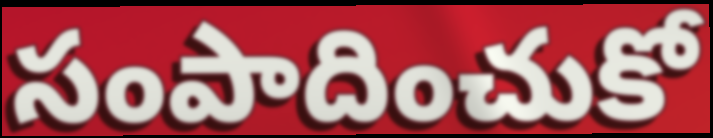
సంపాదించుకో